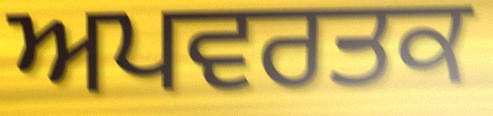
ਅਪਵਰਤਕ